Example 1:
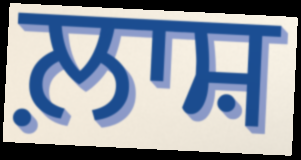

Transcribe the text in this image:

ਲ਼ਾਸ਼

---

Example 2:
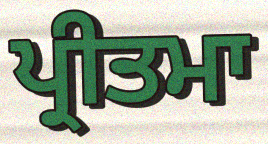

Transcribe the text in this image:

ਪ੍ਰੀਤਮਾ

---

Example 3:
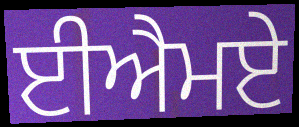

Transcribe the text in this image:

ਈਐਮਏ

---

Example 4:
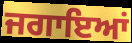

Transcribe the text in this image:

ਜਗਾਇਆਂ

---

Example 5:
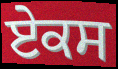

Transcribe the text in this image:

ਏਕਸ